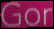
Gor